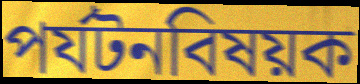
পর্যটনবিষয়ক